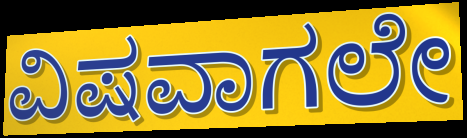
ವಿಷವಾಗಲೇ